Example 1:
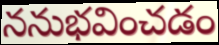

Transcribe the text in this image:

ననుభవించడం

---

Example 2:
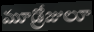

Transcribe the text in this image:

మూడ్రోజులూ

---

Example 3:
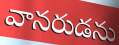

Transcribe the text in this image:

వానరుడను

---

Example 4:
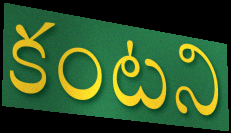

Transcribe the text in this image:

కంటని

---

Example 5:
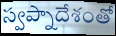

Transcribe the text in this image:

స్వప్నాదేశంతో